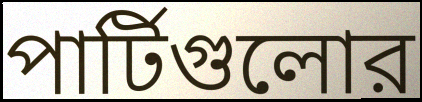
পার্টিগুলোর